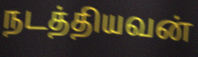
நடத்தியவன்